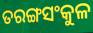
ତରଙ୍ଗସଂକୁଳ